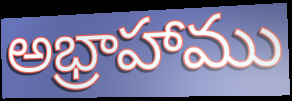
అభ్రాహాము